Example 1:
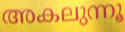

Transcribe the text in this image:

അകലുന്നൂ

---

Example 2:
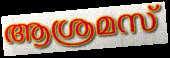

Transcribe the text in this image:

ആശ്രമസ്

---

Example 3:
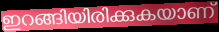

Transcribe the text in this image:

ഇറങ്ങിയിരിക്കുകയാണ്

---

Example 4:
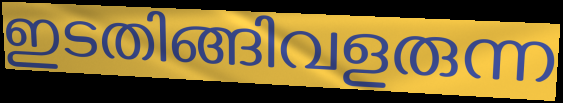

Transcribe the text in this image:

ഇടതിങ്ങിവളരുന്ന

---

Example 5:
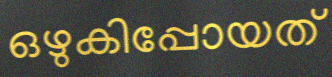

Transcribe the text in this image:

ഒഴുകിപ്പോയത്